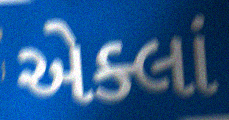
એક્લાં